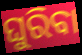
ଘୁରିବା